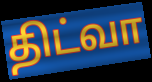
திட்வா